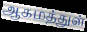
ஆகமத்துள்